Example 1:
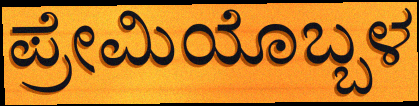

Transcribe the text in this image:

ಪ್ರೇಮಿಯೊಬ್ಬಳ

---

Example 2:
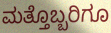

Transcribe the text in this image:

ಮತ್ತೊಬ್ಬರಿಗೂ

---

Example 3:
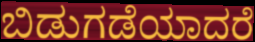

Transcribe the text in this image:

ಬಿಡುಗಡೆಯಾದರೆ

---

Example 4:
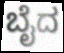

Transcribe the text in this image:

ಬೈದ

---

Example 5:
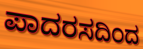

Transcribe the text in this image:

ಪಾದರಸದಿಂದ